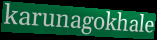
karunagokhale